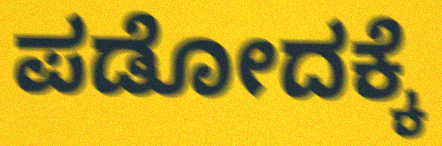
ಪಡೋದಕ್ಕೆ